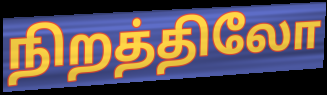
நிறத்திலோ